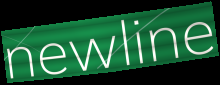
newline